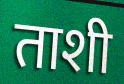
ताशी